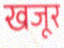
खजूर